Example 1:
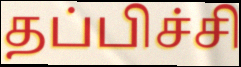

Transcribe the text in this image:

தப்பிச்சி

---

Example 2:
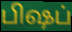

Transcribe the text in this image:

பிஷப்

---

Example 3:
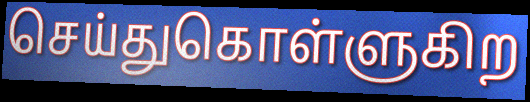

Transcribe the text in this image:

செய்துகொள்ளுகிற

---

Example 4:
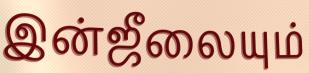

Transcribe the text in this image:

இன்ஜீலையும்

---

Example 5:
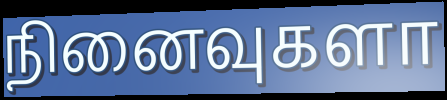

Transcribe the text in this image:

நினைவுகளா